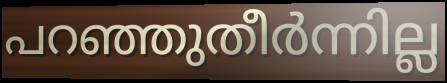
പറഞ്ഞുതീർന്നില്ല